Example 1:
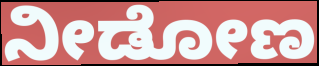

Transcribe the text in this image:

ನೀಡೋಣ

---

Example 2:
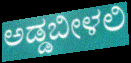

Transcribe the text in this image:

ಅಡ್ಡಬೀಳಲಿ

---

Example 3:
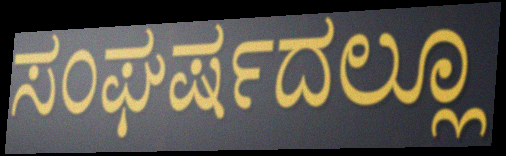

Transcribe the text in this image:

ಸಂಘರ್ಷದಲ್ಲೂ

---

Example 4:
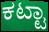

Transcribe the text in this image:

ಕಟ್ಟಾ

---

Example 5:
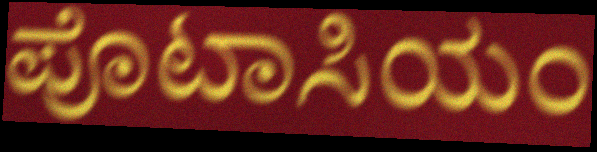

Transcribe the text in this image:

ಪೊಟಾಸಿಯಂ